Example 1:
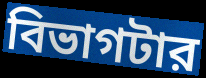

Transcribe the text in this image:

বিভাগটার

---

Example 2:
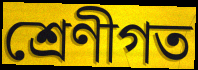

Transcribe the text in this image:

শ্রেণীগত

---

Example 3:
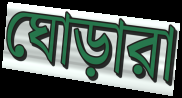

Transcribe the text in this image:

ঘোড়ারা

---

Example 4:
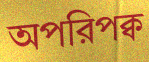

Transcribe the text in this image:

অপরিপক্ব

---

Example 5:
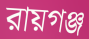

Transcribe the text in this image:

রায়গঞ্জ